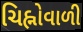
ચિહ્નોવાળી